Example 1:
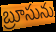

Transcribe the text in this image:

బ్రూసును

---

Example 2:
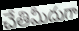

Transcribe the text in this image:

చేతిమీదుగా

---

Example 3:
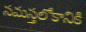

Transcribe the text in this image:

సమస్తలోకానికి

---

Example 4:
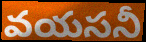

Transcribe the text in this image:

వయసనీ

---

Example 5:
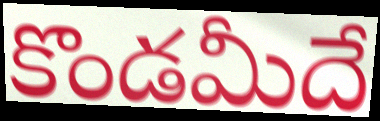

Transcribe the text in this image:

కొండమీదే